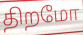
திறமோ